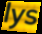
lys